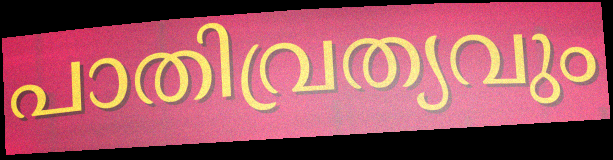
പാതിവ്രത്യവും